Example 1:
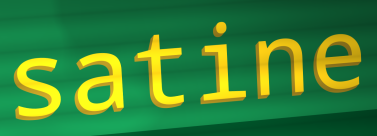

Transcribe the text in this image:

satine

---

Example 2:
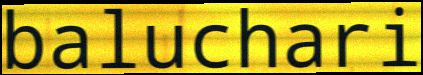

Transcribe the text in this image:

baluchari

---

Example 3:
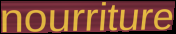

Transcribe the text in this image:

nourriture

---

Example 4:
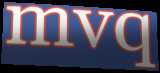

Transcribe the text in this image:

mvq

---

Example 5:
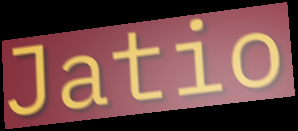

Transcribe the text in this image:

Jatio